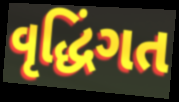
વૃદ્ધિંગત